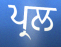
ਪ੍ਰਲ